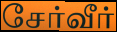
சேர்வீர்